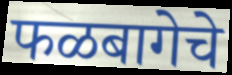
फळबागेचे